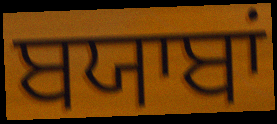
ਬਯਾਬਾਂ